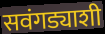
सवंगड्याशी